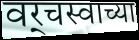
वर्चस्वाच्या